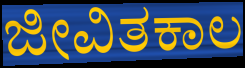
ಜೀವಿತಕಾಲ